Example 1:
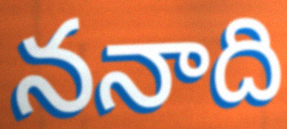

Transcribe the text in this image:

ననాది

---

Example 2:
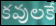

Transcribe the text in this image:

కవులకే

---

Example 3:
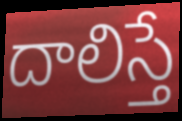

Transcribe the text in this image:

దాలిస్తే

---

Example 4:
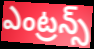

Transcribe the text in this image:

ఎంట్రన్స్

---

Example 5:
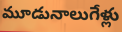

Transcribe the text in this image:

మూడునాలుగేళ్లు